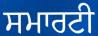
ਸਮਾਰਟੀ